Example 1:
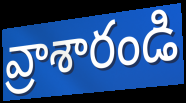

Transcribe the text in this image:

వ్రాశారండి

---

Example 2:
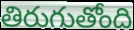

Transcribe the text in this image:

తిరుగుతోంది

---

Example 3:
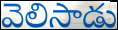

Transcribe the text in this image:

వెలిసాడు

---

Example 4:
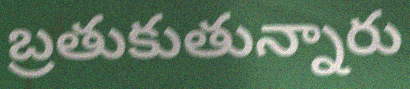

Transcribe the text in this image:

బ్రతుకుతున్నారు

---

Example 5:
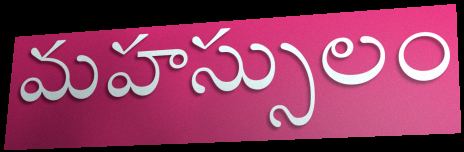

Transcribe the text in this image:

మహస్సులం